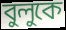
বুলুকে